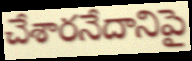
చేశారనేదానిపై